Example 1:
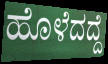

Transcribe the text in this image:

ಹೊಳೆದದ್ದೆ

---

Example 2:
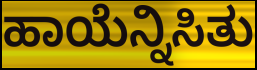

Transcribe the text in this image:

ಹಾಯೆನ್ನಿಸಿತು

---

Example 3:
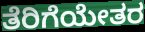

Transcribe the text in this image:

ತೆರಿಗೆಯೇತರ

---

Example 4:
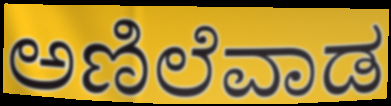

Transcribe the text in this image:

ಅಣಿಲೆವಾಡ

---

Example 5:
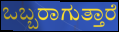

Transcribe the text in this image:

ಒಬ್ಬರಾಗುತ್ತಾರೆ